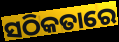
ସଠିକତାରେ